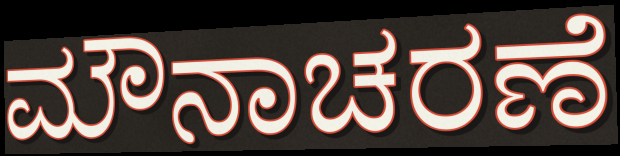
ಮೌನಾಚರಣೆ